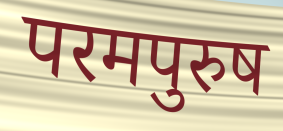
परमपुरुष